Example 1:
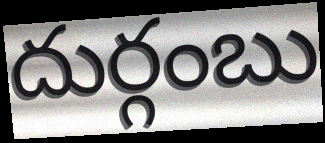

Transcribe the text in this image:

దుర్గంబు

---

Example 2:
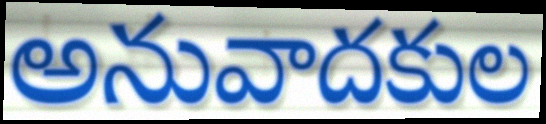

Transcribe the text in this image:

అనువాదకుల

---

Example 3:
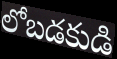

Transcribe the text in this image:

లోబడకుడి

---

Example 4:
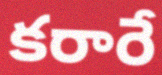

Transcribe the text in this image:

కరారే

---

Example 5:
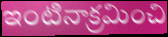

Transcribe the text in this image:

ఇంటినాక్రమించి